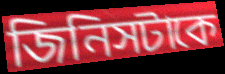
জিনিসটাকে